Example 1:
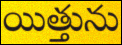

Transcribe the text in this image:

యిత్తును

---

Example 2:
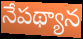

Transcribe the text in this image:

నేపథ్యాన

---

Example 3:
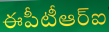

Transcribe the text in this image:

ఈపీటీఆర్ఐ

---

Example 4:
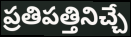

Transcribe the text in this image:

ప్రతిపత్తినిచ్చే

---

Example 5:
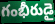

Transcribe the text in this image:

గంభీరుడై